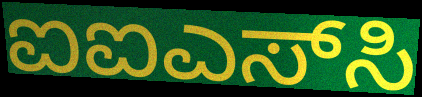
ಐಐಎಸ್‌ಸಿ